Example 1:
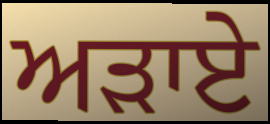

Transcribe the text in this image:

ਅੜਾਏ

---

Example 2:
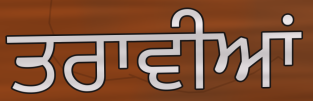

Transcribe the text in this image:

ਤਰਾਵੀਆਂ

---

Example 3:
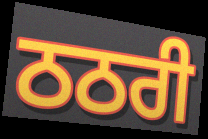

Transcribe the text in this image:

ਠਠਰੀ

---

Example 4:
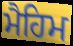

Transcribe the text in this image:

ਮੈਹਿਮ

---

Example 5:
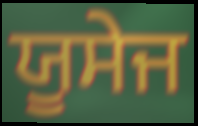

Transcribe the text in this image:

ਯੂਸੇਜ